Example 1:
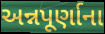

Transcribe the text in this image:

અન્નપૂર્ણાના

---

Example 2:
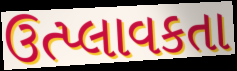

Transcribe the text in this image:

ઉત્પ્લાવકતા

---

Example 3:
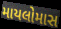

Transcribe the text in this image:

માયલોમાસ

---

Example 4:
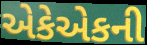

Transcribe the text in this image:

એકેએકની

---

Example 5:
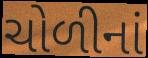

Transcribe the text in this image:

ચોળીનાં